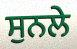
ਸੁਨਲੇ